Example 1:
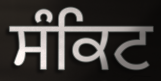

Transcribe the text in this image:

ਸੰਕਿਟ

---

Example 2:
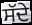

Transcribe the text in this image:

ਸੱਦੇ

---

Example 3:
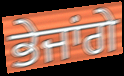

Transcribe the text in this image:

ਭੇਜਾਂਗੇ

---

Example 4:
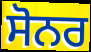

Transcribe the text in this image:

ਸੋਨਰ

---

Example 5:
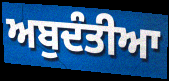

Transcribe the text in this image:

ਅਬੁਦੰਤੀਆ